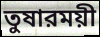
তুষারময়ী